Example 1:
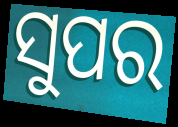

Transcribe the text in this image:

ସୁପର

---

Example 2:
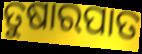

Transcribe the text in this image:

ତୁଷାରପାତ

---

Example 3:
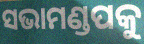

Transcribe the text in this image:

ସଭାମଣ୍ଡପକୁ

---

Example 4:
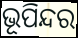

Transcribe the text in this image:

ଭୂପିନ୍ଦର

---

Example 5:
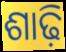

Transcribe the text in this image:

ଶାଢ଼ି